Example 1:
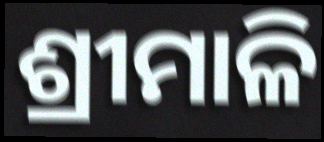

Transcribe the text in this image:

ଶ୍ରୀମାଳି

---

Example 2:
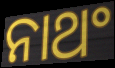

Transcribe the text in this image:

ନାଥଂ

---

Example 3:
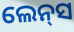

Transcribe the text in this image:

ଲେନ୍‌ସ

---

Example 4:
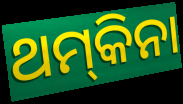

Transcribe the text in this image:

ଥମ୍‍କିନା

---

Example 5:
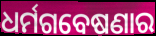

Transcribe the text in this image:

ଧର୍ମଗବେଷଣାର